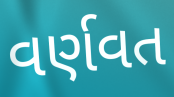
વર્ણવત